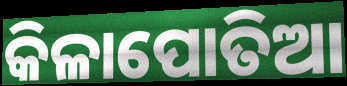
କିଳାପୋତିଆ